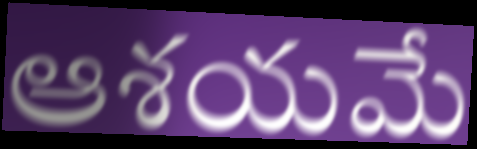
ఆశయమే